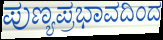
ಪುಣ್ಯಪ್ರಭಾವದಿಂದ